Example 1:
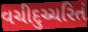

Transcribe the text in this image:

વચીદુચ્ચરિતં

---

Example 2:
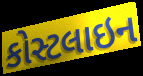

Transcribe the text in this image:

કોસ્ટલાઇન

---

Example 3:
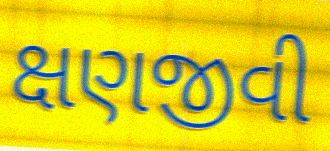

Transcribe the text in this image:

ક્ષણજીવી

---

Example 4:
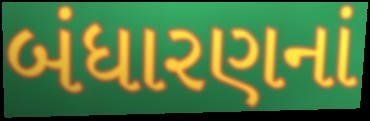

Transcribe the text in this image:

બંધારણનાં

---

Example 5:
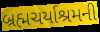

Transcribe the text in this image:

બ્રહ્મચર્યાશ્રમની